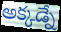
అక్కడ్నే